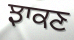
ਝਾਕਣ